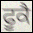
ਫੂਕੈ